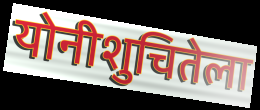
योनीशुचितेला